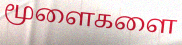
மூளைகளை